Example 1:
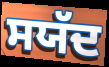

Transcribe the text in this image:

ਸਯੱਦ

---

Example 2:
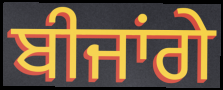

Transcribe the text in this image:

ਬੀਜਾਂਗੇ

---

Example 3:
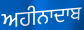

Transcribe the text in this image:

ਅਹੀਨਾਦਾਬ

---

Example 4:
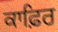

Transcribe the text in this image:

ਕਾਫ਼ਿਰ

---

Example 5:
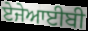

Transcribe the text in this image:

ਏਜੇਆਈਬੀ